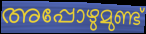
അപ്പോഴുമുണ്ട്